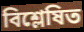
বিশ্লেষিত